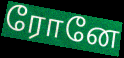
ரோனே